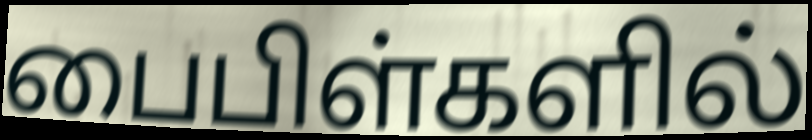
பைபிள்களில்